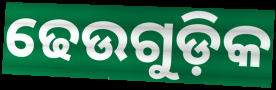
ଢେଉଗୁଡ଼ିକ